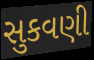
સુકવણી